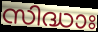
സിദ്ധാഃ